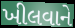
ખીલવાને